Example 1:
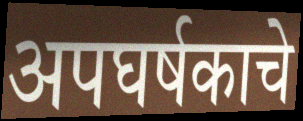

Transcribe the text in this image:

अपघर्षकाचे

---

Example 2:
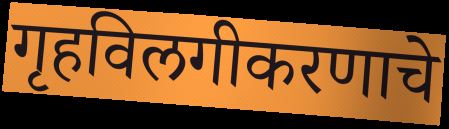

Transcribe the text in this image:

गृहविलगीकरणाचे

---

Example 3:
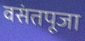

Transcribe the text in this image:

वसंतपूजा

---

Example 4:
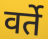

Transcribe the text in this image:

वर्ते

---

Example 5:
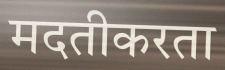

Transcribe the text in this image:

मदतीकरता